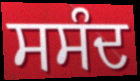
ਸਸੰਦ